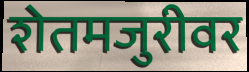
शेतमजुरीवर